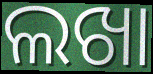
ଲଖା